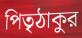
পিতৃঠাকুর